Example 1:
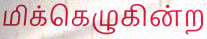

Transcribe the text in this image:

மிக்கெழுகின்ற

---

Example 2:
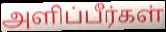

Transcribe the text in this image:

அளிப்பீர்கள்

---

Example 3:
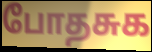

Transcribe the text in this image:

போதசுக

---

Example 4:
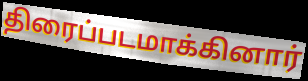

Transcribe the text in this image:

திரைப்படமாக்கினார்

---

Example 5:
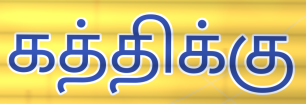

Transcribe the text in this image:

கத்திக்கு